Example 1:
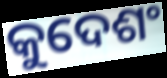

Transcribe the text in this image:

କୁଦେଶଂ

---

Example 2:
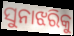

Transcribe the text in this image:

ସୁନାଝରିକୁ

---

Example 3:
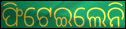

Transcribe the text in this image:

ଫିଟେଇଲେନି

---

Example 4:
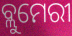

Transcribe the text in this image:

ବ୍ଲୁମେରୀ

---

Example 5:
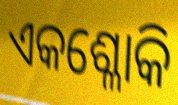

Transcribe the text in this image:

ଏକଶ୍ଳୋକି